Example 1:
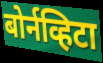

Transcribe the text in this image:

बोर्नव्हिटा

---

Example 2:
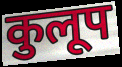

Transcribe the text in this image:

कुलूप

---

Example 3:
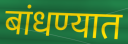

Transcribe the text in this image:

बांधण्‍यात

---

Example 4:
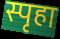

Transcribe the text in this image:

स्पृहा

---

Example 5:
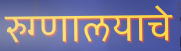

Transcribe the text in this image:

रुग्णालयाचे